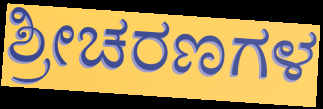
ಶ್ರೀಚರಣಗಳ